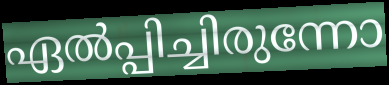
ഏൽപ്പിച്ചിരുന്നോ